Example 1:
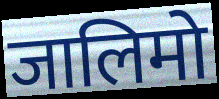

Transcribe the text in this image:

जालिमो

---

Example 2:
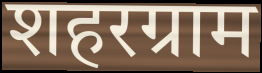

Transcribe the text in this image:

शहरग्राम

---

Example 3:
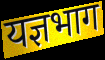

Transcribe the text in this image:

यज्ञभाग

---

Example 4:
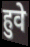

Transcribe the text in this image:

हुवे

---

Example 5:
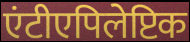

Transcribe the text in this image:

एंटीएपिलेप्टिक